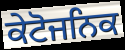
ਕੇਟੋਜਨਿਕ